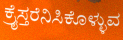
ಕ್ರೈಸ್ತರೆನಿಸಿಕೊಳ್ಳುವ